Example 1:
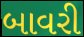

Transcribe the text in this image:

બાવરી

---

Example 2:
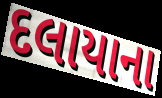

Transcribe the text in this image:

દલાયાના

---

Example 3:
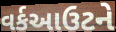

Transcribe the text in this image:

વર્કઆઉટને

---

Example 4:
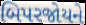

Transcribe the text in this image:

બિપરજોયને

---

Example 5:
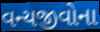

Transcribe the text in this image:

વન્યજીવોના